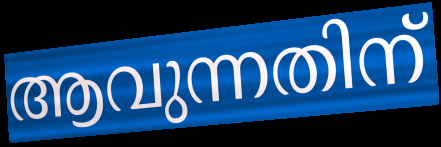
ആവുന്നതിന്